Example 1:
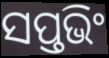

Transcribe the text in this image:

ସପ୍ତଭିଂ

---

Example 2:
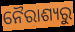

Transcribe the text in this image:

ନୈରାଶ୍ୟରୁ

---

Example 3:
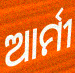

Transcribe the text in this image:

ଆର୍ମୀ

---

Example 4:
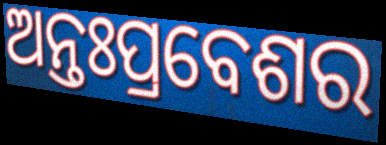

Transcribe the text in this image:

ଅନ୍ତଃପ୍ରବେଶର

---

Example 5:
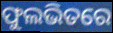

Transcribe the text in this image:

ଫୁଲଭିତରେ